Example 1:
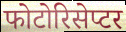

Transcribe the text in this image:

फोटोरिसेप्टर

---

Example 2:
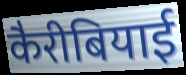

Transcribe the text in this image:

कैरीबियाई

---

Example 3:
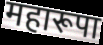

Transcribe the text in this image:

महारूपा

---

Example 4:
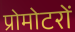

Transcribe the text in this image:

प्रोमोटरों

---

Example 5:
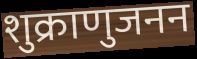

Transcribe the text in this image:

शुक्राणुजनन